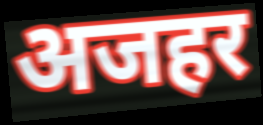
अजहर